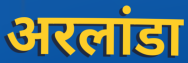
अरलांडा